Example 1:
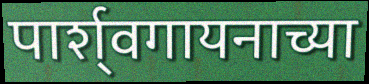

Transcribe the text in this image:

पार्श्वगायनाच्या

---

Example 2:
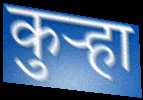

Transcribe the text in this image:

कुऱ्हा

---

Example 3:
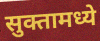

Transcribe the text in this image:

सुक्तामध्ये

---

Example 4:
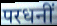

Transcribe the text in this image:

परधनीं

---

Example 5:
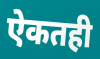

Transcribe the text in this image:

ऐकतही